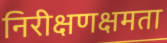
निरीक्षणक्षमता